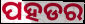
ପହଡର